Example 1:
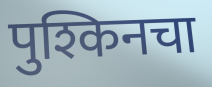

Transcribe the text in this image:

पुश्किनचा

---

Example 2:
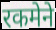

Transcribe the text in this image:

रकमेने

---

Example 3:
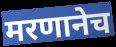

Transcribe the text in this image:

मरणानेच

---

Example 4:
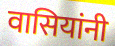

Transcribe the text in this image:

वासियांनी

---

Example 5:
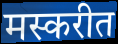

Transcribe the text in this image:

मस्करीत